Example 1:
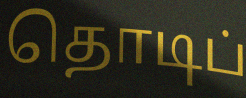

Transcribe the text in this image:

தொடிப்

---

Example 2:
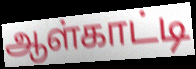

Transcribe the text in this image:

ஆள்காட்டி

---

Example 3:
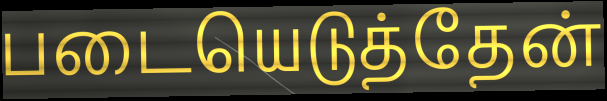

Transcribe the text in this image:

படையெடுத்தேன்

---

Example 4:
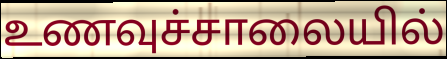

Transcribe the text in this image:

உணவுச்சாலையில்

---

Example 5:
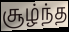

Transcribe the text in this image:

சூழ்ந்த